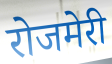
रोजमेरी